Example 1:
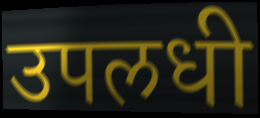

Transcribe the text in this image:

उपलधी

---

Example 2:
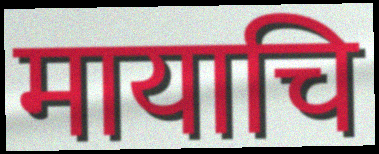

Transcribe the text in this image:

मायाचि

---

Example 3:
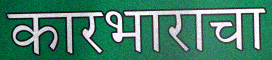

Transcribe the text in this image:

कारभाराचा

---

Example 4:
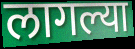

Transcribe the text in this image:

लागल्या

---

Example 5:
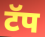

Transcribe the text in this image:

टॅप